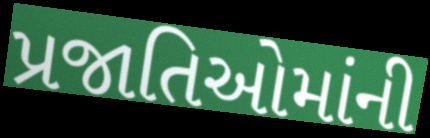
પ્રજાતિઓમાંની